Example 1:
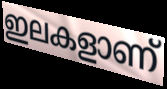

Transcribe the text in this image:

ഇലകളാണ്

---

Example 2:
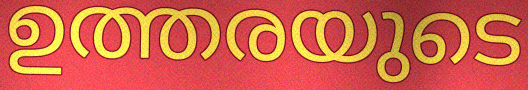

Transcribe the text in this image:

ഉത്തരയുടെ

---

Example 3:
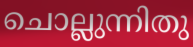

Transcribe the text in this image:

ചൊല്ലുന്നിതു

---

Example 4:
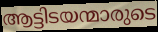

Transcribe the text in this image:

ആട്ടിടയന്മാരുടെ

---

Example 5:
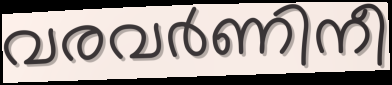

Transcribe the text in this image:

വരവർണിനീ